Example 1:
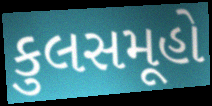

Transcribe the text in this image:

કુલસમૂહો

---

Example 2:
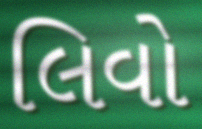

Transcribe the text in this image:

લિવો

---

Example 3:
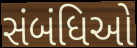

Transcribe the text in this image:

સંબંધિઓ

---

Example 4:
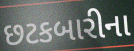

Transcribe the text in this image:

છટકબારીના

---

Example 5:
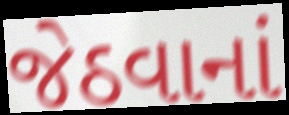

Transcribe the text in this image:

જેઠવાનાં